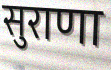
सुराणा